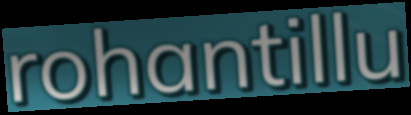
rohantillu